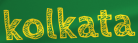
kolkata